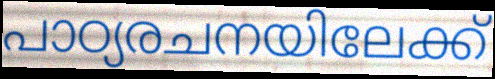
പാഠ്യരചനയിലേക്ക്